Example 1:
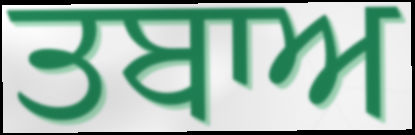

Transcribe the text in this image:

ਤਬਾਅ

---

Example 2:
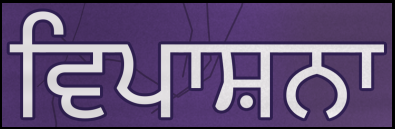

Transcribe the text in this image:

ਵਿਪਾਸ਼ਨਾ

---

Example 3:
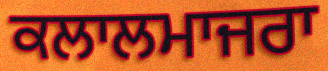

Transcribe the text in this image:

ਕਲਾਲਮਾਜਰਾ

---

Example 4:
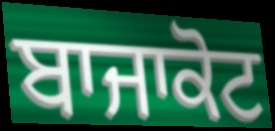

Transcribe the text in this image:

ਬਾਜਾਕੋਟ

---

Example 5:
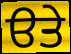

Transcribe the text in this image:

ੳਤੇ